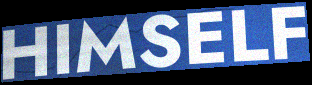
HIMSELF